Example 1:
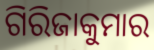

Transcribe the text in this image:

ଗିରିଜାକୁମାର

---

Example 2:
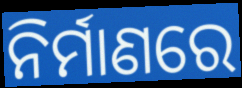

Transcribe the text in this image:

ନିର୍ମାଣରେ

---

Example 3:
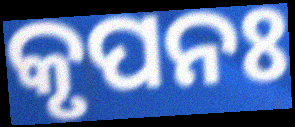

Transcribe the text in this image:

କୃପନଃ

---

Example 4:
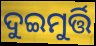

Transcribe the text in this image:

ଦୁଇମୁର୍ତ୍ତି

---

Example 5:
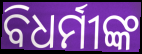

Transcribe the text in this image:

ବିଧର୍ମୀଙ୍କ